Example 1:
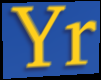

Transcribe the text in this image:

Yr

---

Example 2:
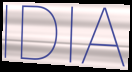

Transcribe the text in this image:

IDIA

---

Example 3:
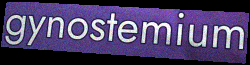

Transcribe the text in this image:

gynostemium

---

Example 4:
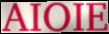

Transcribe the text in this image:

AIOIE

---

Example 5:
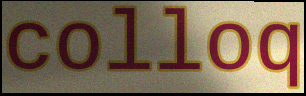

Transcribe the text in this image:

colloq